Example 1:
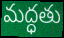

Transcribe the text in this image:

మద్ధతు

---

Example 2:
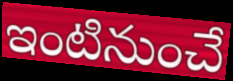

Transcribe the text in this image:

ఇంటినుంచే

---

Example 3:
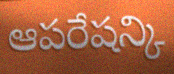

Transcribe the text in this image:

ఆపరేషన్కి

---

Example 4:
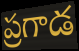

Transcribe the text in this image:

ప్రగాడ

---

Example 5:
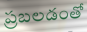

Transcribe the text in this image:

ప్రబలడంతో